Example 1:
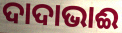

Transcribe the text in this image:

ଦାଦାଭାଈ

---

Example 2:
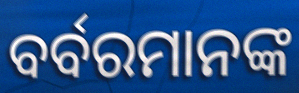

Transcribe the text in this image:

ବର୍ବରମାନଙ୍କ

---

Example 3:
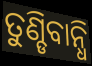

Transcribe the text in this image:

ତୁଣ୍ଡିବାନ୍ଧି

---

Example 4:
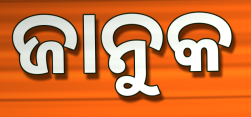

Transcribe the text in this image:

ଜାନୁକ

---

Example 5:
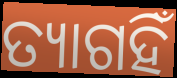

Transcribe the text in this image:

ତ୍ୟାଗହିଁ